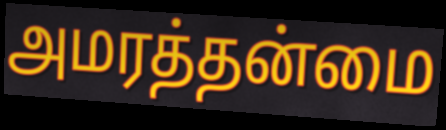
அமரத்தன்மை